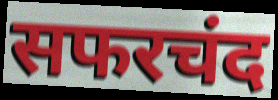
सफरचंद